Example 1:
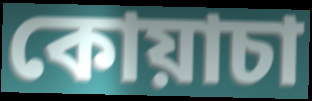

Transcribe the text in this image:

কোয়াচা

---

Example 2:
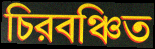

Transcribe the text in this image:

চিরবঞ্চিত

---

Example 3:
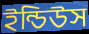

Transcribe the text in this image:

ইন্ডিউস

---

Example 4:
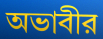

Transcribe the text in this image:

অভাবীর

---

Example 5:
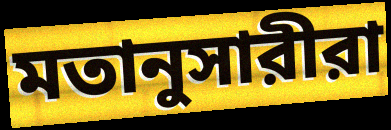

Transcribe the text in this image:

মতানুসারীরা